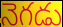
నెగడు